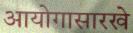
आयोगासारखे